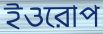
ইওরোপ